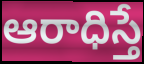
ఆరాధిస్తే